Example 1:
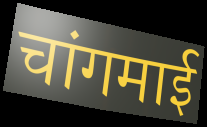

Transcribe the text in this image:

चांगमाई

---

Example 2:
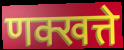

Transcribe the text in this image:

णक्खत्ते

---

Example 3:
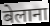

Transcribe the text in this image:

बेलाना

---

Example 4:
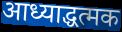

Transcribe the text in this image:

आध्याद्धत्मक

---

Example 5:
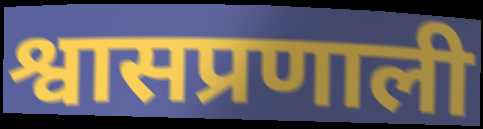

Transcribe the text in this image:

श्वासप्रणाली